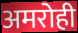
अमरोही